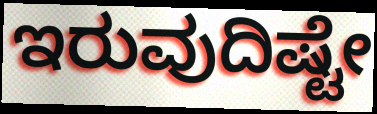
ಇರುವುದಿಷ್ಟೇ